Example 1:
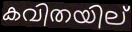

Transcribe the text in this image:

കവിതയില്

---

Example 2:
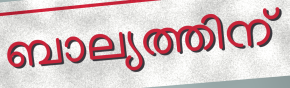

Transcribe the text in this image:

ബാല്യത്തിന്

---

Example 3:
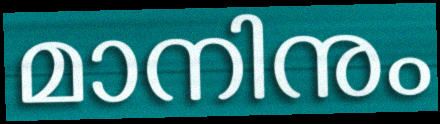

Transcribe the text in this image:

മാനിനും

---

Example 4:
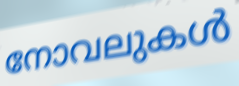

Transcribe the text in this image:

നോവലുകൾ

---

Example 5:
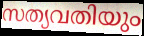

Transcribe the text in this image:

സത്യവതിയും